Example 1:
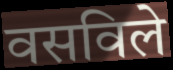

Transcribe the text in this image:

वसविले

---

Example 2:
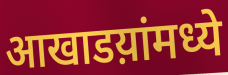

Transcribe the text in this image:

आखाडय़ांमध्ये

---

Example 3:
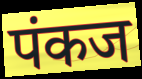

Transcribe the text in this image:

पंकज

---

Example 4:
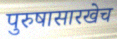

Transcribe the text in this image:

पुरुषासारखेच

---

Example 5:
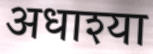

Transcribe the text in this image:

अधाश्या